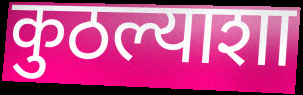
कुठल्याशा